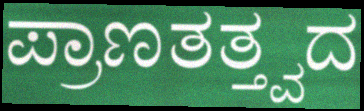
ಪ್ರಾಣತತ್ತ್ವದ